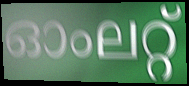
ഓംലറ്റ്